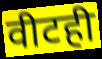
वीटही